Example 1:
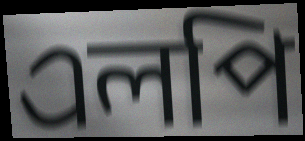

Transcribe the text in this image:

এলপি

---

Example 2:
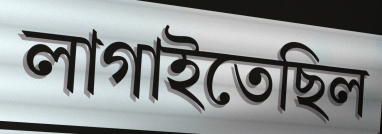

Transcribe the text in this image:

লাগাইতেছিল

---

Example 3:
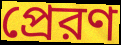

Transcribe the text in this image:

প্রেরণ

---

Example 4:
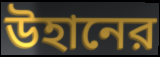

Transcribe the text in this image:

উহানের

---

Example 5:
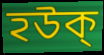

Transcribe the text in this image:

হউক্